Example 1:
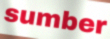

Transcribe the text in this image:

sumber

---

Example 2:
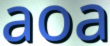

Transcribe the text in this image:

aoa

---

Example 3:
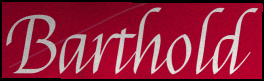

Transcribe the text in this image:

Barthold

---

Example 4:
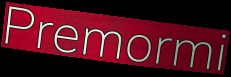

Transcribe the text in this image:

Premormi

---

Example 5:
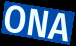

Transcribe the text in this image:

ONA